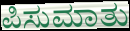
ಪಿಸುಮಾತು